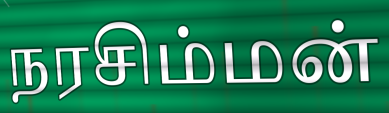
நரசிம்மன்